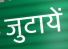
जुटायें